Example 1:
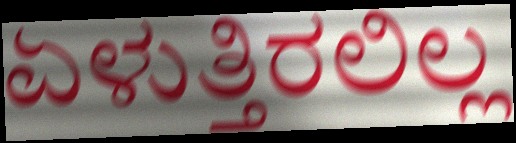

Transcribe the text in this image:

ಏಳುತ್ತಿರಲಿಲ್ಲ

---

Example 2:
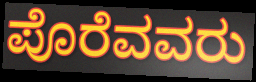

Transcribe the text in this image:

ಪೊರೆವವರು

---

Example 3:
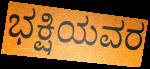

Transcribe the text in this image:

ಭಕ್ಷಿಯವರ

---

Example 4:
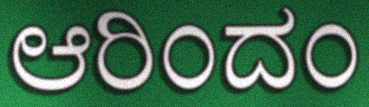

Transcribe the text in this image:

ಆರಿಂದಂ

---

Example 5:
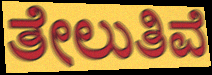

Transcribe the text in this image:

ತೇಲುತಿವೆ